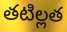
తటిల్లత